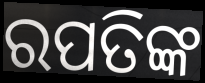
ରପତିଙ୍କ